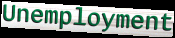
Unemployment